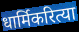
धार्मिकरित्या